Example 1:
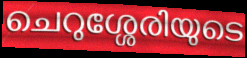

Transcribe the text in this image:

ചെറുശ്ശേരിയുടെ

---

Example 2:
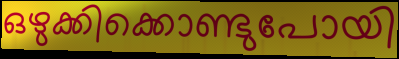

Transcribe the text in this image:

ഒഴുക്കിക്കൊണ്ടുപോയി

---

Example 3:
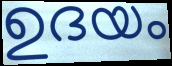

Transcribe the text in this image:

ഉദയം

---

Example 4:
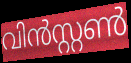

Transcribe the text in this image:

വിൻസ്റ്റൺ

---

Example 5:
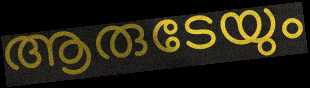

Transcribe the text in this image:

ആരുടേയും